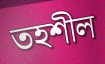
তহশীল